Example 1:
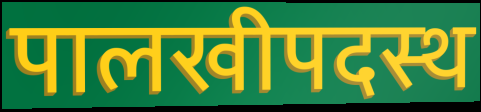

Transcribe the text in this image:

पालखीपदस्थ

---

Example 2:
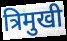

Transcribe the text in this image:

त्रिमुखी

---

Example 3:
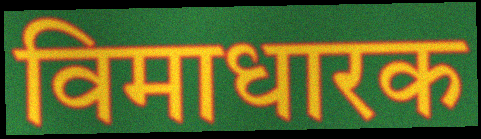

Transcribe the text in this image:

विमाधारक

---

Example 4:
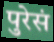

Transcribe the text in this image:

पुरेसं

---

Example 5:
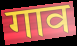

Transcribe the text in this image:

गाव